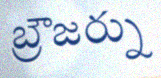
బ్రౌజర్ను